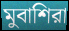
মুবাশিরা